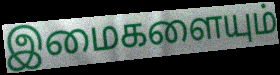
இமைகளையும்